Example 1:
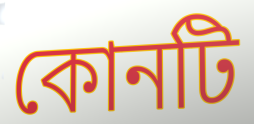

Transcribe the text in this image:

কোনটি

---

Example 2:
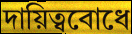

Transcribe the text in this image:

দায়িত্ববোধে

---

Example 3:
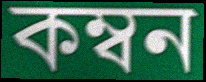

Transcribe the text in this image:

কম্বন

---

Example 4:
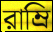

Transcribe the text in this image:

রাম্রি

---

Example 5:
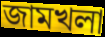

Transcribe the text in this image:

জামখলা